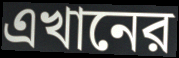
এখানের